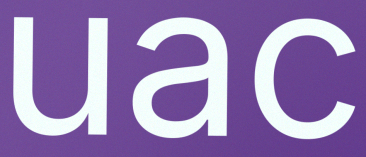
uac